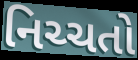
નિચ્ચતો